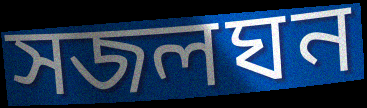
সজলঘন